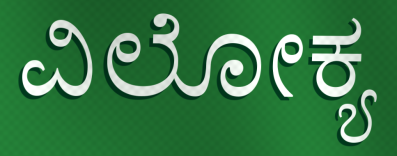
ವಿಲೋಕ್ಯ